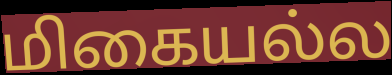
மிகையல்ல